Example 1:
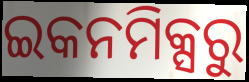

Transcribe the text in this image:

ଇକନମିକ୍ସରୁ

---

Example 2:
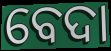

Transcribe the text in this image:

ବେଦା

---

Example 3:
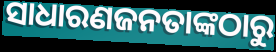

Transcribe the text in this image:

ସାଧାରଣଜନତାଙ୍କଠାରୁ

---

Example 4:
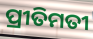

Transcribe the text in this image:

ପ୍ରୀତିମତୀ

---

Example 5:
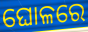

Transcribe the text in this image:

ଘୋଳରେ